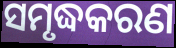
ସମୃଦ୍ଧକରଣ